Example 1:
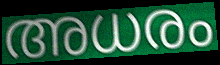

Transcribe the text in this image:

അധരം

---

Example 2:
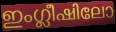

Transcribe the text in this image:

ഇംഗ്ലീഷിലോ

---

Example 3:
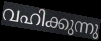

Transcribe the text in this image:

വഹിക്കുന്നു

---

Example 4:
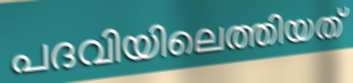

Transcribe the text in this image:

പദവിയിലെത്തിയത്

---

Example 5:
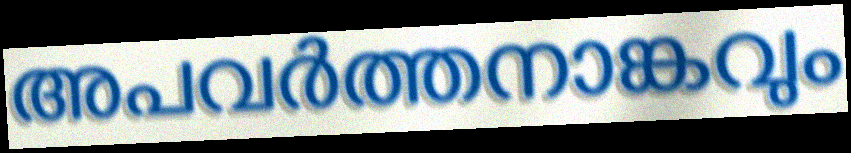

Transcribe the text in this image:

അപവർത്തനാങ്കവും